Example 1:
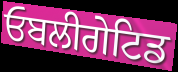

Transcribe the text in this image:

ਓਬਲੀਗੇਟਿਡ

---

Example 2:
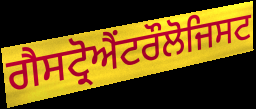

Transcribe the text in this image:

ਗੈਸਟ੍ਰੋਐਂਟਰੌਲੋਜਿਸਟ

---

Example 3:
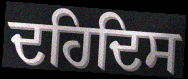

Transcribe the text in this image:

ਦਹਿਦਿਸ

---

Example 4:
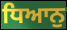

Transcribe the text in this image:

ਧਿਆਨੁ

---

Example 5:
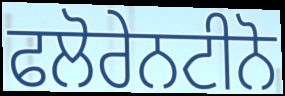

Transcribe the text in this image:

ਫਲੋਰੇਨਟੀਨੋ